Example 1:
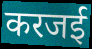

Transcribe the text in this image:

करजई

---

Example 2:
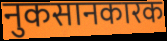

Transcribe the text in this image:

नुकसानकारक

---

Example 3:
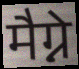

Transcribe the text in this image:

मैग्ने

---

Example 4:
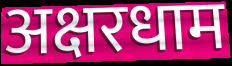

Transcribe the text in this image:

अक्षरधाम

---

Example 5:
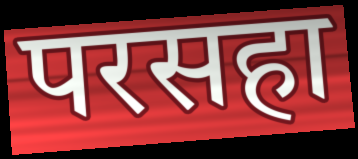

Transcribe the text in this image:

परसहा